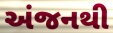
અંજનથી